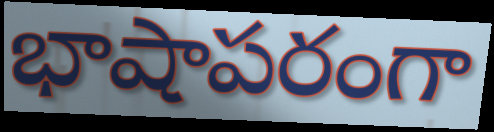
భాషాపరంగా